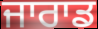
ਜਾਰਾਡ